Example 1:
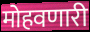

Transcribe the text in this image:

मोहवणारी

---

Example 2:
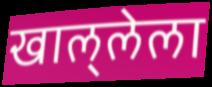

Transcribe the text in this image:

खाल्लेला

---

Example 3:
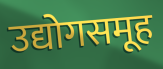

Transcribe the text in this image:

उद्योगसमूह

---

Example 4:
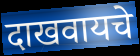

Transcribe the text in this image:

दाखवायचे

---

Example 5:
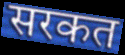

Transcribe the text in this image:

सरकत